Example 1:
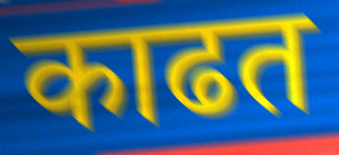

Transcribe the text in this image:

काढत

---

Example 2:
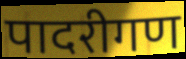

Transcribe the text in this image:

पादरीगण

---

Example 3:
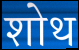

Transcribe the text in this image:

शोथ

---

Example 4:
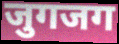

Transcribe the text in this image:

जुगजग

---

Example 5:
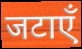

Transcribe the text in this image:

जटाएँ